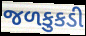
જળકુકડી